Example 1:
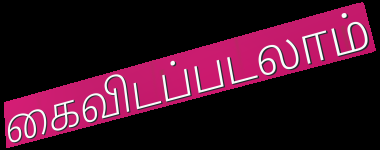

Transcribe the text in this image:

கைவிடப்படலாம்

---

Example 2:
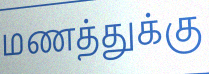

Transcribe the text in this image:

மணத்துக்கு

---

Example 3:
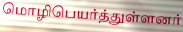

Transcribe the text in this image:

மொழிபெயர்த்துள்ளனர்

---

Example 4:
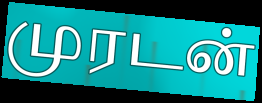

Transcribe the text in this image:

முரடன்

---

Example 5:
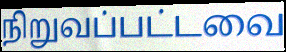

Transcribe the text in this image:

நிறுவப்பட்டவை